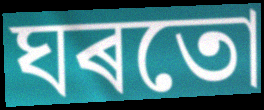
ঘৰতো